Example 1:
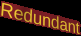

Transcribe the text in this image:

Redundant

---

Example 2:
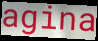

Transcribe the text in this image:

agina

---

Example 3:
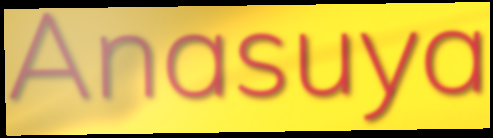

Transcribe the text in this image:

Anasuya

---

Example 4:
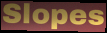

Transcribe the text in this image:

Slopes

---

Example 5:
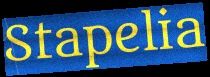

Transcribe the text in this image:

Stapelia